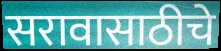
सरावासाठीचे